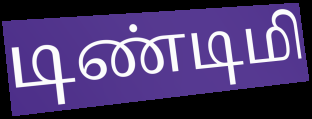
டிண்டிமி